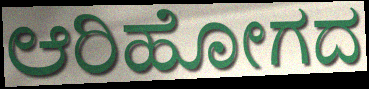
ಆರಿಹೋಗದ